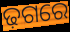
ଢ଼ଗରେ